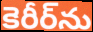
కెరీర్‌ను